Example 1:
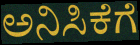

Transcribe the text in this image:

ಅನಿಸಿಕೆಗೆ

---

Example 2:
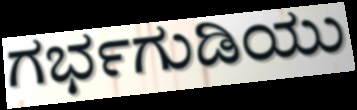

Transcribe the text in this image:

ಗರ್ಭಗುಡಿಯು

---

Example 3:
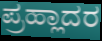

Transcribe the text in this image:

ಪ್ರಹ್ಲಾದರ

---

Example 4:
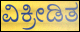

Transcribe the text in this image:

ವಿಕ್ರೀಡಿತ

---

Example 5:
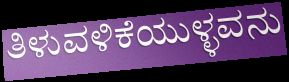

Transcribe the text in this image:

ತಿಳುವಳಿಕೆಯುಳ್ಳವನು